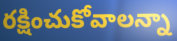
రక్షించుకోవాలన్నా